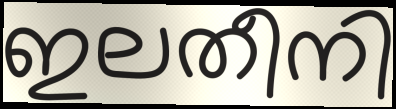
ഇലതീനി